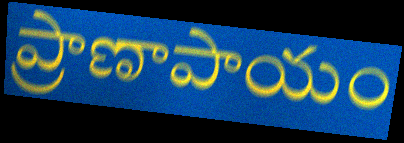
ప్రాణాపాయం